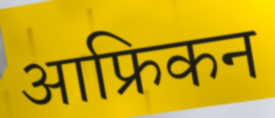
आफ्रिकन